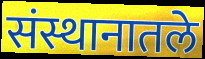
संस्थानातले